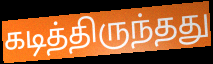
கடித்திருந்தது